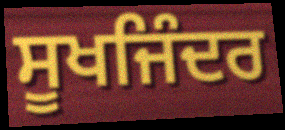
ਸੂਖਜਿੰਦਰ